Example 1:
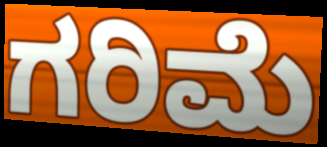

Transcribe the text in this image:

ಗರಿಮೆ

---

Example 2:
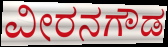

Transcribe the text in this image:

ವೀರನಗೌಡ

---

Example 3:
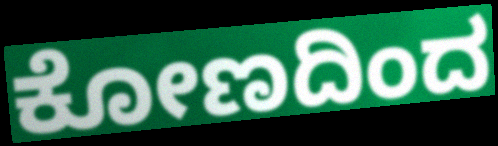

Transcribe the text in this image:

ಕೋಣದಿಂದ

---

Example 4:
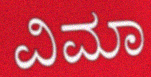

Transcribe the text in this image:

ವಿಮಾ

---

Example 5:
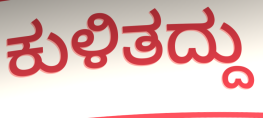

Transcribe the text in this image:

ಕುಳಿತದ್ದು